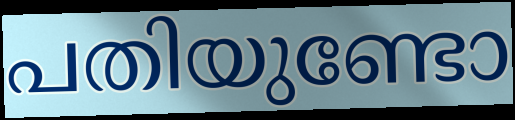
പതിയുണ്ടോ